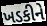
ખડકીને